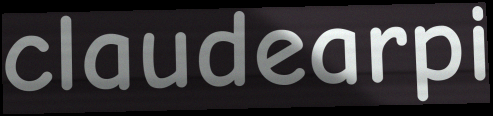
claudearpi